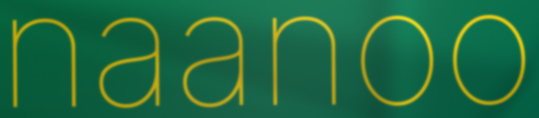
naanoo